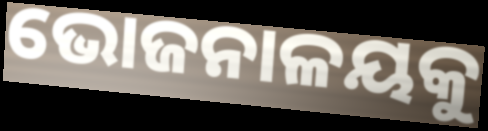
ଭୋଜନାଳୟକୁ